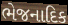
ભેજનાદિક